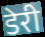
डेरी